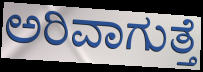
ಅರಿವಾಗುತ್ತೆ